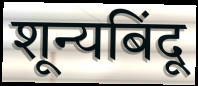
शून्यबिंदू